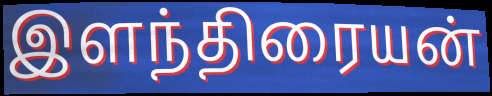
இளந்திரையன்